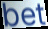
bet